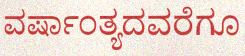
ವರ್ಷಾಂತ್ಯದವರೆಗೂ